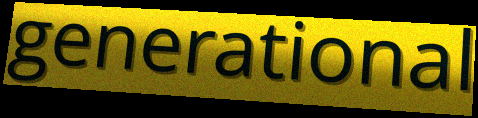
generational